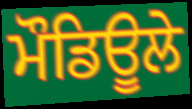
ਮੌਡਿਊਲੇ